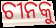
ଚୀନକୁ